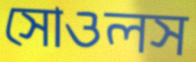
সোওলস